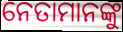
ନେତାମାନଙ୍କୁ